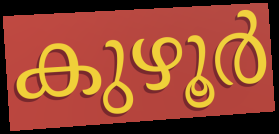
കുഴൂർ